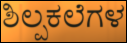
ಶಿಲ್ಪಕಲೆಗಳ